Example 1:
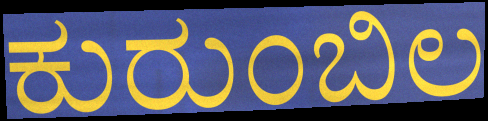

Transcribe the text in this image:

ಕುರುಂಬಿಲ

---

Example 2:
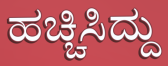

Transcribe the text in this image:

ಹಚ್ಚಿಸಿದ್ದು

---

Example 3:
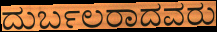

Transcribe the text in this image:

ದುರ್ಬಲರಾದವರು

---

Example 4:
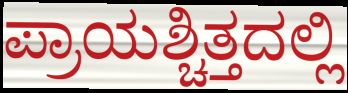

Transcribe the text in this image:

ಪ್ರಾಯಶ್ಚಿತ್ತದಲ್ಲಿ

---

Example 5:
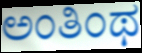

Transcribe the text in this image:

ಅಂತಿಂಥ